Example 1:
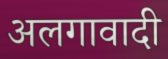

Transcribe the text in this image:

अलगावादी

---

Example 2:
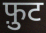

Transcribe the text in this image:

फ़ुट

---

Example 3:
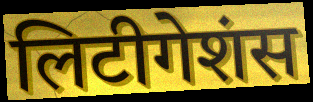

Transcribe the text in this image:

लिटीगेशंस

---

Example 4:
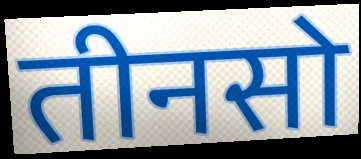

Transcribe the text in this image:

तीनसो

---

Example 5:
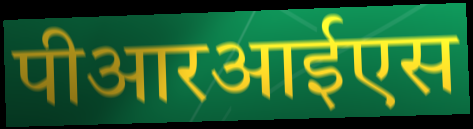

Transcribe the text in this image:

पीआरआईएस